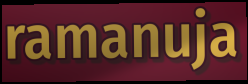
ramanuja